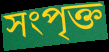
সংপৃক্ত